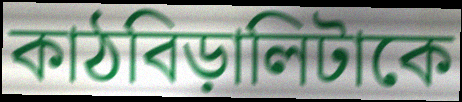
কাঠবিড়ালিটাকে